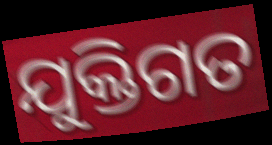
ଯୁକ୍ତିଗତ